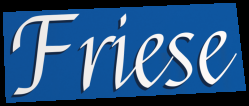
Friese